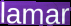
lamar